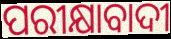
ପରୀକ୍ଷାବାଦୀ